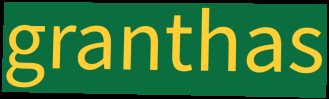
granthas